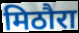
मिठौरा